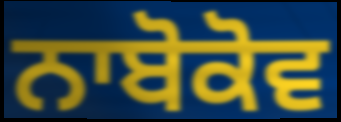
ਨਾਬੋਕੋਵ